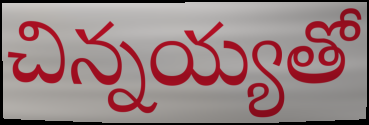
చిన్నయ్యతో